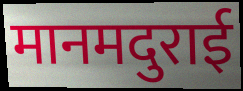
मानमदुराई